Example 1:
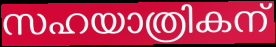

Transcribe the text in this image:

സഹയാത്രികന്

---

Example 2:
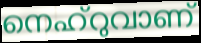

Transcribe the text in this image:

നെഹ്റുവാണ്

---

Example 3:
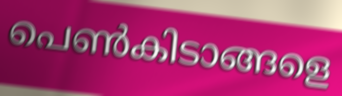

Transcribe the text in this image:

പെൺകിടാങ്ങളെ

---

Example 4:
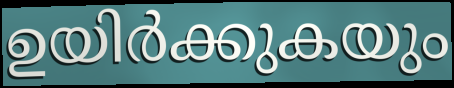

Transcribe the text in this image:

ഉയിർക്കുകയും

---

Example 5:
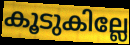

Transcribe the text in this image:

കൂടുകില്ലേ